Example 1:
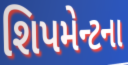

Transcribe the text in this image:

શિપમેન્ટના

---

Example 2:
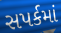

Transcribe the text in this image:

સપર્કમાં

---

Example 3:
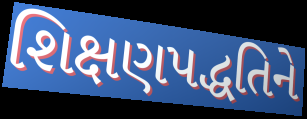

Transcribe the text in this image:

શિક્ષણપદ્ધતિને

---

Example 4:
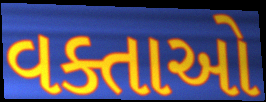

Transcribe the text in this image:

વક્તાઓ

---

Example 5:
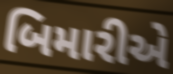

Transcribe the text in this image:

બિમારીએ